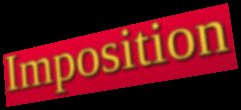
Imposition